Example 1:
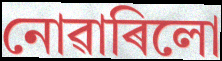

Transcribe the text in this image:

নোৱাৰিলো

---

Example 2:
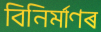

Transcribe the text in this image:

বিনিৰ্মাণৰ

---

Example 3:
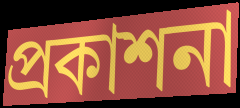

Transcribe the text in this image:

প্ৰকাশনা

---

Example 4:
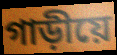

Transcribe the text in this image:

গাড়ীয়ে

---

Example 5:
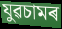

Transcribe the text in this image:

যুৱচামৰ